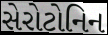
સેરોટોનિન